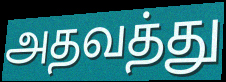
அதவத்து